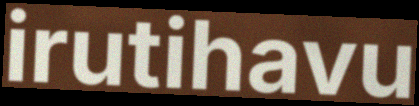
irutihavu